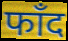
फाँद